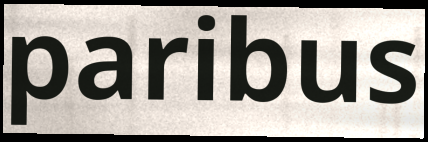
paribus